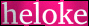
heloke